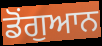
ਡੋਂਗੁਆਨ